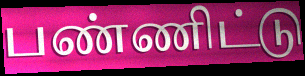
பண்ணிட்டு